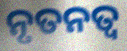
ନୃତନତ୍ୱ